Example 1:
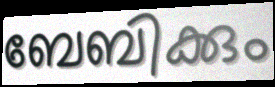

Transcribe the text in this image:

ബേബിക്കും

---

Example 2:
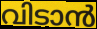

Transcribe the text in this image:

വിടാൻ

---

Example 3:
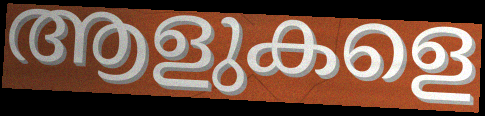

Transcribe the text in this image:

ആളുകളെ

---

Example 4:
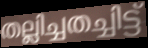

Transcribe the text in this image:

തല്ലിച്ചതച്ചിട്ട്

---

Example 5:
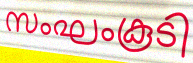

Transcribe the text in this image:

സംഘംകൂടി